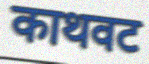
काथवट